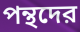
পন্থদের